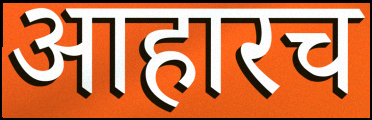
आहारच